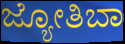
ಜ್ಯೋತಿಬಾ